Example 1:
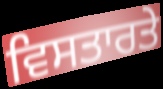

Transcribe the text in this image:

ਵਿਸਤਾਰਤੇ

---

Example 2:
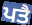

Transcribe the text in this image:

ਪਤੈ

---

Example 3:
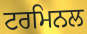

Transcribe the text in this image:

ਟਰਮਿਨਲ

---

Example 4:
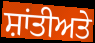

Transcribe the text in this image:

ਸ਼ਾਂਤੀਅਤੇ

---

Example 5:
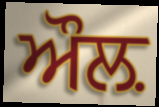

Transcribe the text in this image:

ਔਲ਼